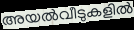
അയൽവീടുകളിൽ